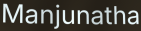
Manjunatha